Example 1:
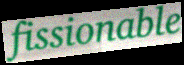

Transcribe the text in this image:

fissionable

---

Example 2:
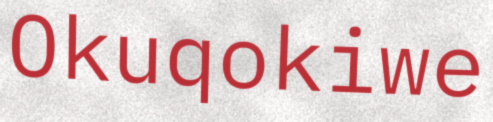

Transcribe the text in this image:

Okuqokiwe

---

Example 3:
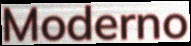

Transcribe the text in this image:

Moderno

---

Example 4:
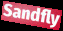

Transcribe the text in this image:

Sandfly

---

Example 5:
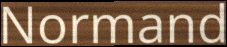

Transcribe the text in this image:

Normand